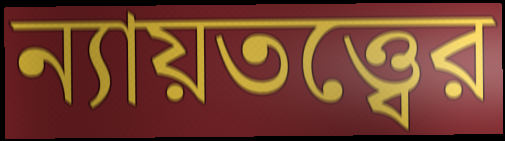
ন্যায়তত্ত্বের